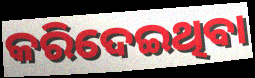
କରିଦେଇଥିବା